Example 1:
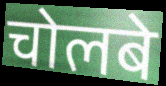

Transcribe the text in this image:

चोलबे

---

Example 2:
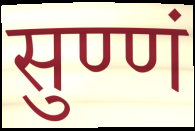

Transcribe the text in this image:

सुण्णं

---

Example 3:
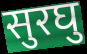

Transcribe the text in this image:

सुरघु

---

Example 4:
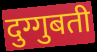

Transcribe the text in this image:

दुग्गुबती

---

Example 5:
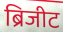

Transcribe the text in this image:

ब्रिजीट